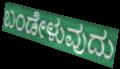
ಬಂಡೇಳುವುದು